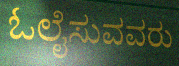
ಓಲೈಸುವವರು